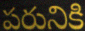
పరునికి